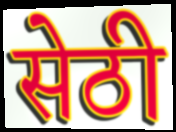
सेठी